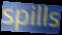
spills